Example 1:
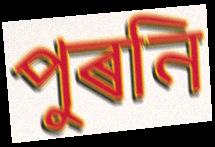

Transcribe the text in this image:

পুৰনি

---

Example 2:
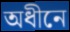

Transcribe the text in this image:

অধীনে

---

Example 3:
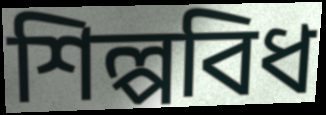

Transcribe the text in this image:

শিল্পবিধ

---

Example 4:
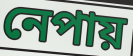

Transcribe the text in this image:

নেপায়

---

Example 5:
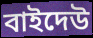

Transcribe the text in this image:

বাইদেউ